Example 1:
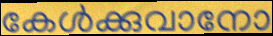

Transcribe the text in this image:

കേൾക്കുവാനോ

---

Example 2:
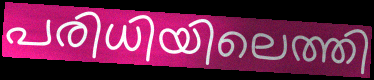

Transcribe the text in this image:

പരിധിയിലെത്തി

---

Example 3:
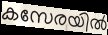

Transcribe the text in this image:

കസേരയിൽ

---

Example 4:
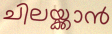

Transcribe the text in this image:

ചിലയ്ക്കാൻ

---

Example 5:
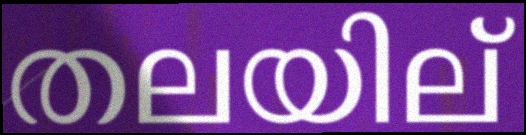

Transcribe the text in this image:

തലയില്